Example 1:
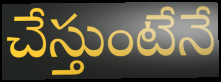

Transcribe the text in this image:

చేస్తుంటేనే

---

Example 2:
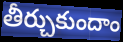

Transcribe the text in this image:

తీర్చుకుందాం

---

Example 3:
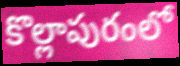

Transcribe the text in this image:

కొల్లాపురంలో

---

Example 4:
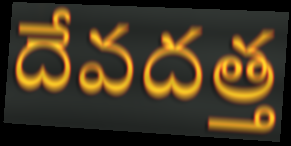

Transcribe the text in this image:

దేవదత్త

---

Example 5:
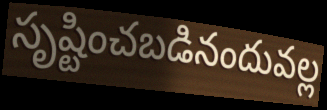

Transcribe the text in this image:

సృష్టించబడినందువల్ల